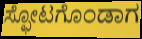
ಸ್ಫೋಟಗೊಂಡಾಗ